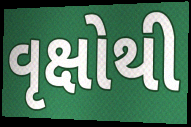
વૃક્ષોથી